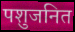
पशुजनित